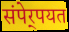
संपेर्पयत